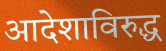
आदेशाविरुद्ध